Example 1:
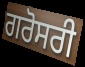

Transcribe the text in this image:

ਗਰੋਸਰੀ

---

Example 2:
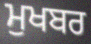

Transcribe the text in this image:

ਮੁਖਬਰ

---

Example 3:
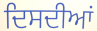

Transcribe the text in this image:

ਦਿਸਦੀਆਂ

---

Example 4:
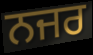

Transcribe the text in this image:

ਨਜਰ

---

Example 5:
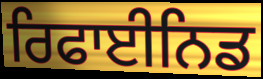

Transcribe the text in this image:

ਰਿਫਾਈਨਿਡ